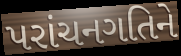
પરાંચનગતિને